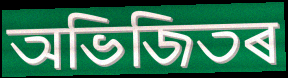
অভিজিতৰ